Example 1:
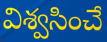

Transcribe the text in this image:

విశ్వసించే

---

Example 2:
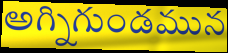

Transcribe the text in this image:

అగ్నిగుండమున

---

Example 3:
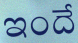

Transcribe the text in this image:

ఇందే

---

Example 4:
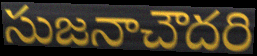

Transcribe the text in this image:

సుజనాచౌదరి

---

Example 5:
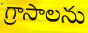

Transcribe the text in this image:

గ్రాసాలను